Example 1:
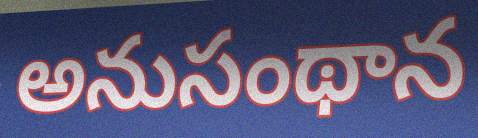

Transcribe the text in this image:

అనుసంథాన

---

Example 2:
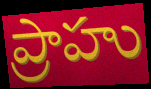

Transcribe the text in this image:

ప్రాహు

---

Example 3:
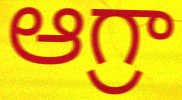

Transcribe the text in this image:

ఆగ్రా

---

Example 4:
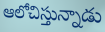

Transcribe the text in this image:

ఆలోచిస్తున్నాడు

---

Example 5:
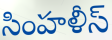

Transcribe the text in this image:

సింహళీస్